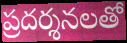
ప్రదర్శనలతో